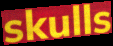
skulls